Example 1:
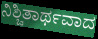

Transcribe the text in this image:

ನಿಶ್ಚಿತಾರ್ಥವಾದ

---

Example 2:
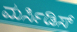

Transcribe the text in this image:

ಮರ್ಸಿಡಿಸ್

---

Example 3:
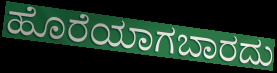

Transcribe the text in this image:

ಹೊರೆಯಾಗಬಾರದು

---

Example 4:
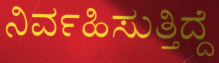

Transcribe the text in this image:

ನಿರ್ವಹಿಸುತ್ತಿದ್ದೆ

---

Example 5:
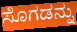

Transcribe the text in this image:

ಸೊಗಡನ್ನು